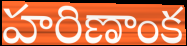
హరిణాంక